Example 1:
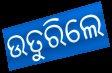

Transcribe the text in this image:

ଉତୁରିଲେ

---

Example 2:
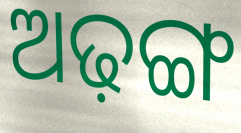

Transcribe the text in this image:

ଅଢ଼ଙ୍ଗ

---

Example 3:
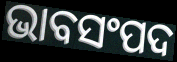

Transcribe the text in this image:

ଭାବସଂପଦ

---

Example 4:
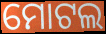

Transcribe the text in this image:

ମୋଟଲ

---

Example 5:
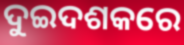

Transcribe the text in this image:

ଦୁଇଦଶକରେ